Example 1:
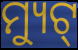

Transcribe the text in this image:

ମ୍ୟୁଟ୍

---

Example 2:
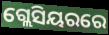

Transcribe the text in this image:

ଗ୍ଲେସିୟରରେ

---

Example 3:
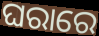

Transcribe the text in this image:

ଘରାରେ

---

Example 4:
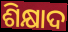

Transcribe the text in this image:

ଶିକ୍ଷାଦ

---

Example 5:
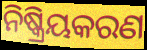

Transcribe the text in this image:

ନିଷ୍କ୍ରିୟକରଣ